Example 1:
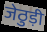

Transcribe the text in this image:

जेठुड़ी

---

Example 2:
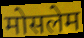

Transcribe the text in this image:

मोसलेम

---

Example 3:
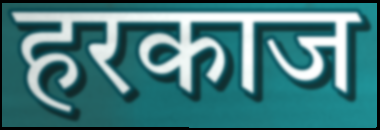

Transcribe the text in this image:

हरकाज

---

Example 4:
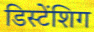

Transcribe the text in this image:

डिस्टेंशिग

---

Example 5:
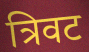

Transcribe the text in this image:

त्रिवट